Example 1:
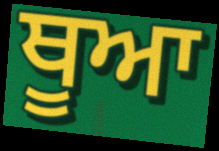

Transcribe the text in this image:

ਥੂਆ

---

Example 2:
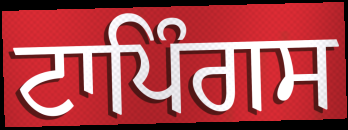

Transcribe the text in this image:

ਟਾਪਿੰਗਸ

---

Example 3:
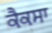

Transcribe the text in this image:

ਕੈਕਸਾ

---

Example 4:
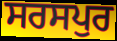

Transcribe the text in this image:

ਸਰਸਪੁਰ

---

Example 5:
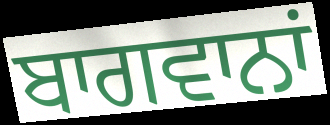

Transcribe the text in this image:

ਬਾਗਵਾਨਾਂ